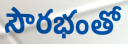
సౌరభంతో